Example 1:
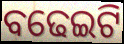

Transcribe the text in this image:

ବଢେଇଟି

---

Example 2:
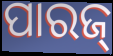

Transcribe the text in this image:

ପାରଜ୍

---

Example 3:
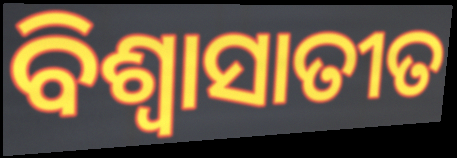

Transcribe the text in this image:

ବିଶ୍ୱାସାତୀତ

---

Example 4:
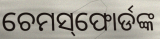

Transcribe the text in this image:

ଚେମସ୍‌ଫୋର୍ଡଙ୍କ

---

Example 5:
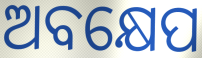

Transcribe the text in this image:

ଅବକ୍ଷେପ